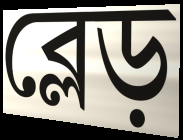
ব্লেড়